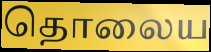
தொலைய